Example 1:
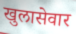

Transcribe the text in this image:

खुलासेवार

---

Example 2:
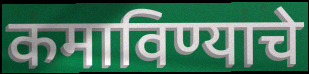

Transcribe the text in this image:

कमाविण्याचे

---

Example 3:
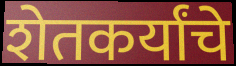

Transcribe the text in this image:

शेतकर्यांचे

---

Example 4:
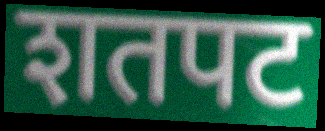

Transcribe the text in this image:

शतपट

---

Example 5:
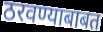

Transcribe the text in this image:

ठरवण्याबाबत